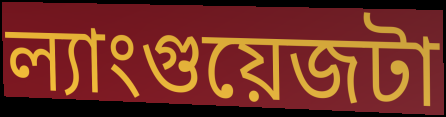
ল্যাংগুয়েজটা